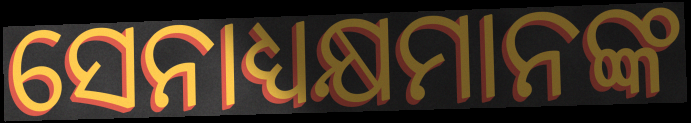
ସେନାଧ୍ୟକ୍ଷମାନଙ୍କ